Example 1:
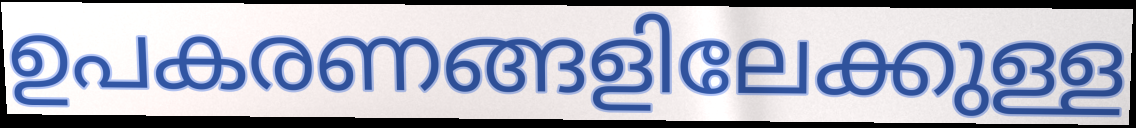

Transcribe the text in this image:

ഉപകരണങ്ങളിലേക്കുള്ള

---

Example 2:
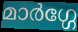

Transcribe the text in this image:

മാർഗ്ഗേ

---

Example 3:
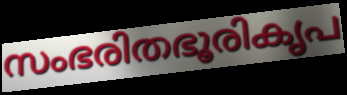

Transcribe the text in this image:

സംഭരിതഭൂരികൃപ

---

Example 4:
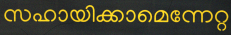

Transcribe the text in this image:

സഹായിക്കാമെന്നേറ്റ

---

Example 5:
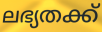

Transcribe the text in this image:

ലഭ്യതക്ക്